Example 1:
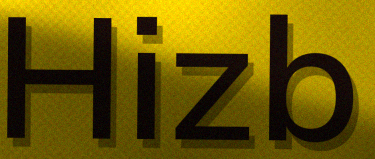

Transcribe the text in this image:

Hizb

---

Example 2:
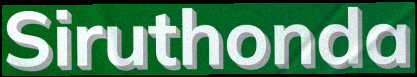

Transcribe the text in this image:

Siruthonda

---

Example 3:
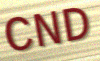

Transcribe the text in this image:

CND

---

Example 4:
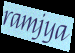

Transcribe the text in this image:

ramjya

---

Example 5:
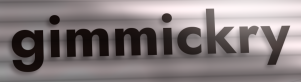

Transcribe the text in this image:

gimmickry